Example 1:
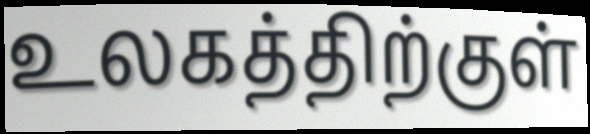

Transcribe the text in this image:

உலகத்திற்குள்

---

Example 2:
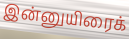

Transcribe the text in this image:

இன்னுயிரைக்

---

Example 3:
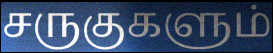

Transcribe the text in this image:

சருகுகளும்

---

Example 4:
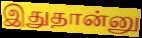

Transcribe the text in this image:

இதுதான்னு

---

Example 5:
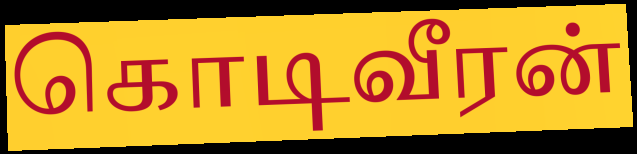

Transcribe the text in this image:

கொடிவீரன்